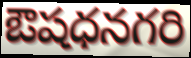
ఔషధనగరి